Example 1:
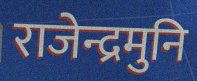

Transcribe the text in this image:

राजेन्द्रमुनि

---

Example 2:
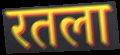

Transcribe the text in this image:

रतला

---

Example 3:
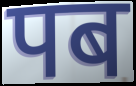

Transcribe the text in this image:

पब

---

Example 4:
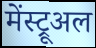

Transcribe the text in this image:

मेंस्ट्रूअल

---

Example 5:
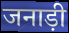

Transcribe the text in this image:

जनाड़ी